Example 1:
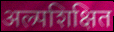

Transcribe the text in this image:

अल्पशिक्षित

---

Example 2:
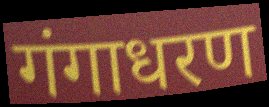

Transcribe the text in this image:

गंगाधरण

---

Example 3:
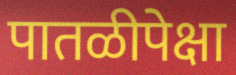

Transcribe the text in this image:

पातळीपेक्षा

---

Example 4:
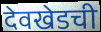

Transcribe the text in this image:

देवखेडची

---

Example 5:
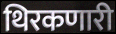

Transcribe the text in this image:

थिरकणारी